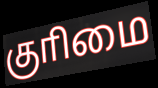
குரிமை